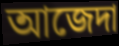
আজেদা